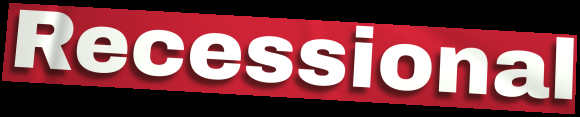
Recessional